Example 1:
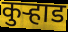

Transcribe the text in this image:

कुऱ्हाड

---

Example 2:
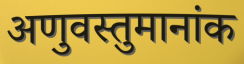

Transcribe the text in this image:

अणुवस्तुमानांक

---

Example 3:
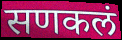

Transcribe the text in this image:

सणकलं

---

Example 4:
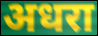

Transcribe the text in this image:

अधरा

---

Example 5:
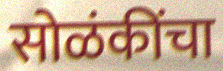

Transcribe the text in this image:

सोळंकींचा